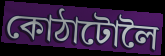
কোঠাটোলৈ